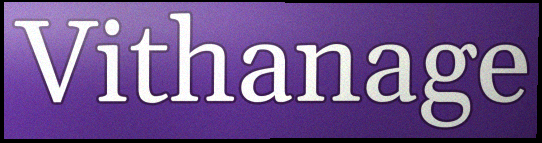
Vithanage